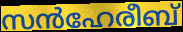
സൻഹേരീബ്